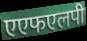
एएफएलपी